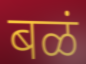
बळं